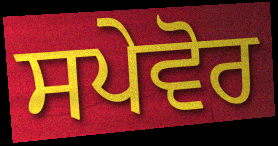
ਸਪੇਵੋਰ